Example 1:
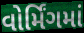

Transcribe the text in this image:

વોર્મિંગમાં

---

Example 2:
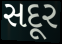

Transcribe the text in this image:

સદૂર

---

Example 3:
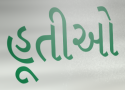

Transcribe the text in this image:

હૂતીઓ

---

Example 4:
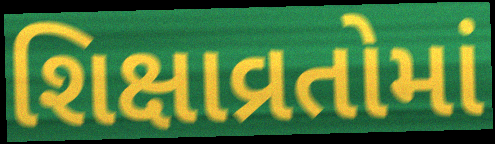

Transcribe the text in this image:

શિક્ષાવ્રતોમાં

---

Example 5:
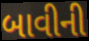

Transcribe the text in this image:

બાવીની